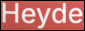
Heyde